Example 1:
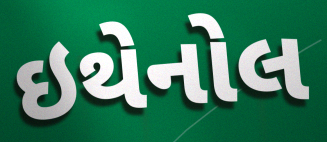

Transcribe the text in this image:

ઇથેનોલ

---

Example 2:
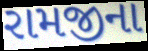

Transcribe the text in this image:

રામજીના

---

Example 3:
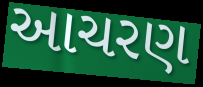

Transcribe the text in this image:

આચરણ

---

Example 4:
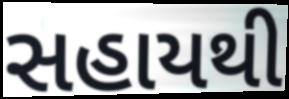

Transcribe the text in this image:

સહાયથી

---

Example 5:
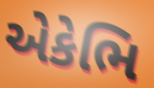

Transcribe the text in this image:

એકેભિ